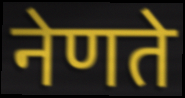
नेणते